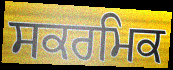
ਸਕਰਮਿਕ